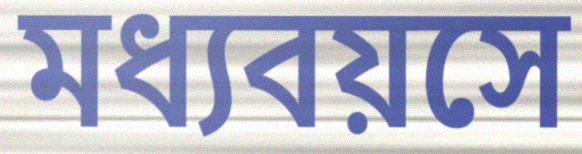
মধ্যবয়সে